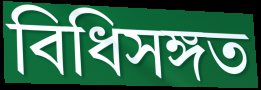
বিধিসঙ্গত